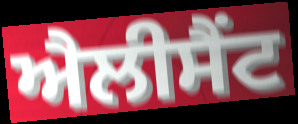
ਐਲੀਸੈਂਟ